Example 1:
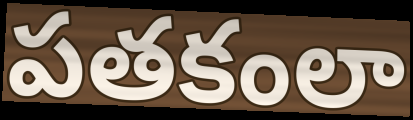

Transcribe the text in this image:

పతకంలా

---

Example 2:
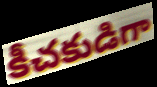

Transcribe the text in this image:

కీచకుడిగా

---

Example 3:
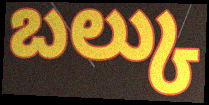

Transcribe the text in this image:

బల్కు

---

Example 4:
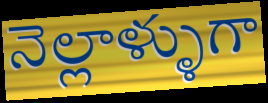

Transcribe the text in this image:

నెల్లాళ్ళుగా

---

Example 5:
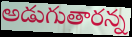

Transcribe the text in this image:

అడుగుతారన్న